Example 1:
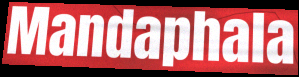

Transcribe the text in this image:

Mandaphala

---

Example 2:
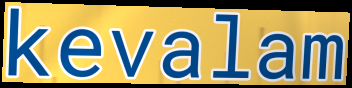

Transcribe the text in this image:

kevalam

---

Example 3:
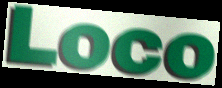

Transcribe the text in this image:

Loco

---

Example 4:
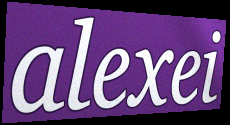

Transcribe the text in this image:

alexei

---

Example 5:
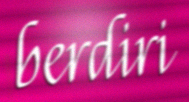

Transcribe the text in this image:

berdiri